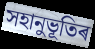
সহানুভূতিৰ